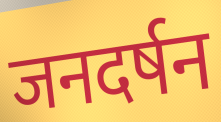
जनदर्षन